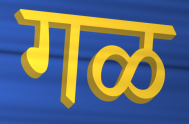
गळ